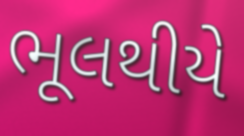
ભૂલથીયે